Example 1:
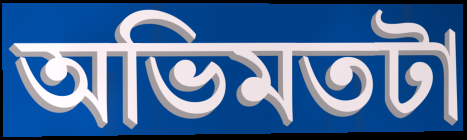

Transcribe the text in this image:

অভিমতটা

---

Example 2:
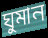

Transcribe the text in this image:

ঘুমান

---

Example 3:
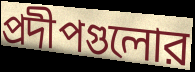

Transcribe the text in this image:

প্রদীপগুলোর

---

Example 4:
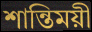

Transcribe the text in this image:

শান্তিময়ী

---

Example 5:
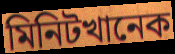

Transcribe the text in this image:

মিনিটখানেক